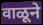
वाळूने